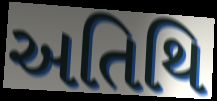
અતિથિ